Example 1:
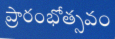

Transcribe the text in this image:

ప్రారంభోత్సవం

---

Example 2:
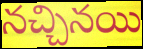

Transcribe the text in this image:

నచ్చినయి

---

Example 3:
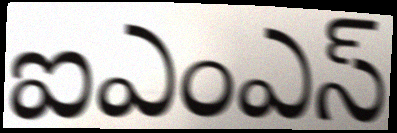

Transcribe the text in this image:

ఐఎంఎస్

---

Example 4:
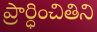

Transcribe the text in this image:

ప్రార్ధించితిని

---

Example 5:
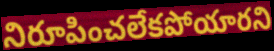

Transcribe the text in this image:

నిరూపించలేకపోయారని